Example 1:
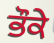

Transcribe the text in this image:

ਭੌਕੇ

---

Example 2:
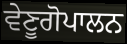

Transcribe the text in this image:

ਵੇਣੂਗੋਪਾਲਨ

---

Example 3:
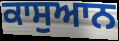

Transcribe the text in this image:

ਕਾਸੁਆਨ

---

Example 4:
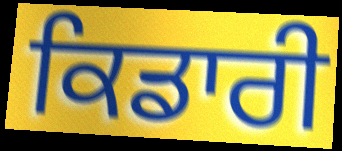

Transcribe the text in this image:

ਕਿਡਾਰੀ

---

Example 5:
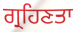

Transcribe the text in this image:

ਗ੍ਰਹਿਣਤਾ